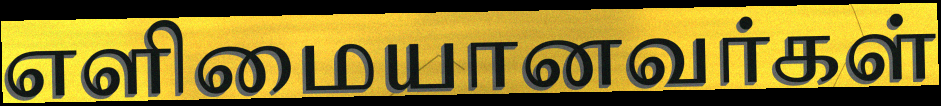
எளிமையானவர்கள்